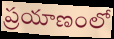
ప్రయాణంలో